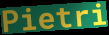
Pietri